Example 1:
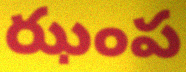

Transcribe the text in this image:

ఝంప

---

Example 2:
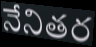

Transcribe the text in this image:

నేనితర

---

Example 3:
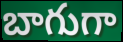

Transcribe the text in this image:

బాగుగా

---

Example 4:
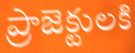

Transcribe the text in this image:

ప్రాజెక్టులకి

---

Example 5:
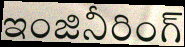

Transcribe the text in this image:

ఇంజినీరింగ్